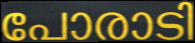
പോരാടി